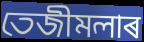
তেজীমলাৰ